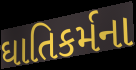
ઘાતિકર્મના